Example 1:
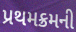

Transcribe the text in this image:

પ્રથમક્રમની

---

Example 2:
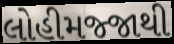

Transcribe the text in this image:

લોહીમજ્જાથી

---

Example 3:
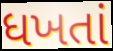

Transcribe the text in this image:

ધખતાં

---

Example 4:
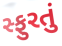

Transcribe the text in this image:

સ્ફુરતું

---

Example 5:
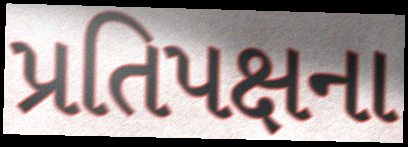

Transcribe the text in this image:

પ્રતિપક્ષના